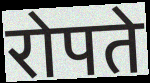
रोपते